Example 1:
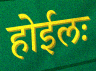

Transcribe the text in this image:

होईलः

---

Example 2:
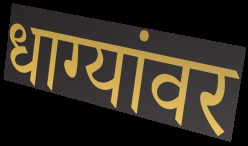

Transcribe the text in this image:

धाग्यांवर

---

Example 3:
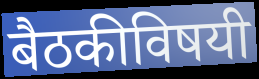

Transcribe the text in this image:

बैठकीविषयी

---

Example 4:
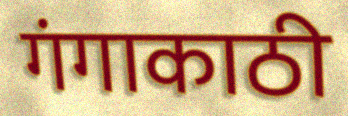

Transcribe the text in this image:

गंगाकाठी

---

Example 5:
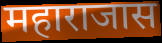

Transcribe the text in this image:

महाराजास